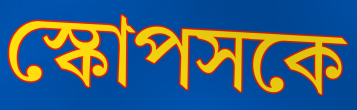
স্কোপসকে